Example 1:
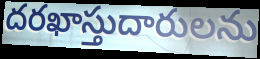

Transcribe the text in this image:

దరఖాస్తుదారులను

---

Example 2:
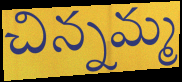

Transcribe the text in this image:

చిన్నమ్మ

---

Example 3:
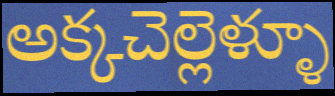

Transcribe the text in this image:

అక్కచెల్లెళ్ళూ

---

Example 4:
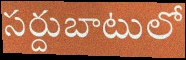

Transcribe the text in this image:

సర్దుబాటులో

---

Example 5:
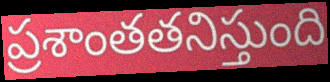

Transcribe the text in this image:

ప్రశాంతతనిస్తుంది